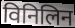
विनिलिन